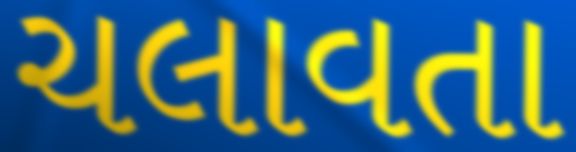
ચલાવતા